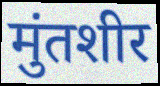
मुंतशीर